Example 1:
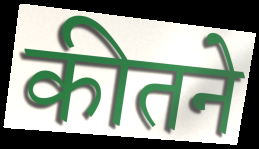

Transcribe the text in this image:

कीतने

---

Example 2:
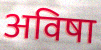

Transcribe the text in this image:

अविषा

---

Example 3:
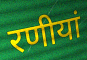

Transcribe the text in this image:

रणीयां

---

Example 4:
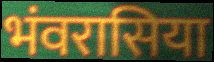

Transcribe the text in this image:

भंवरासिया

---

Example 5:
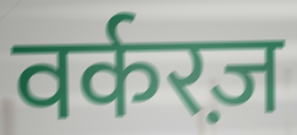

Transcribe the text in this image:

वर्करज़